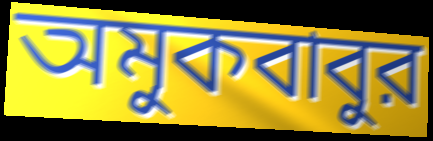
অমুকবাবুর